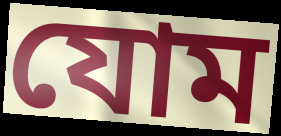
যোম